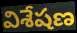
విశేషణ